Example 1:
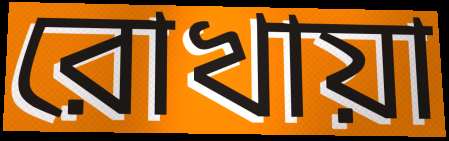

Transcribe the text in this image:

রোখায়া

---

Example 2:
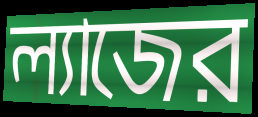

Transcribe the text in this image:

ল্যাজের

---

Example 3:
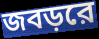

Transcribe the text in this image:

জবড়রে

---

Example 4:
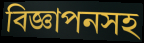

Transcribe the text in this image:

বিজ্ঞাপনসহ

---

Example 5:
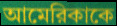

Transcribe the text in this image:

আমেরিকাকে